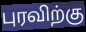
புரவிற்கு